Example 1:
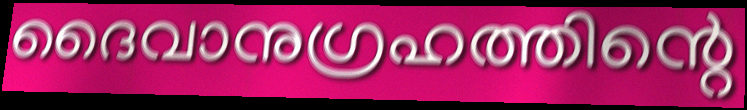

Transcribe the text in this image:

ദൈവാനുഗ്രഹത്തിന്റെ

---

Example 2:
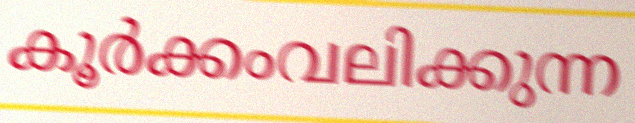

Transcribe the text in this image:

കൂർക്കംവലിക്കുന്ന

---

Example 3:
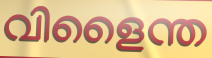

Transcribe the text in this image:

വിളൈന്ത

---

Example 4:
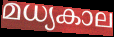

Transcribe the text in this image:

മധ്യകാല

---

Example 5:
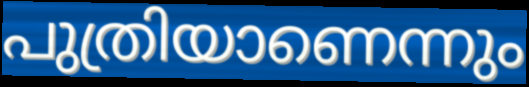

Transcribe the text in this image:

പുത്രിയാണെന്നും